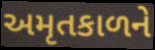
અમૃતકાળને